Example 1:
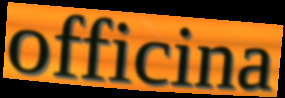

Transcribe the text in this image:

officina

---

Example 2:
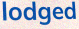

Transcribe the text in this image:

lodged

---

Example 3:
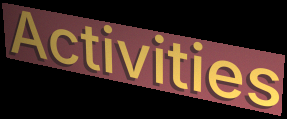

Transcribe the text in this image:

Activities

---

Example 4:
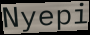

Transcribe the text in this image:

Nyepi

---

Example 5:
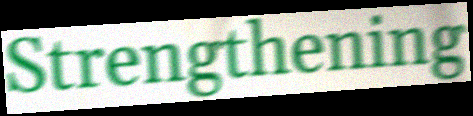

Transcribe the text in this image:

Strengthening